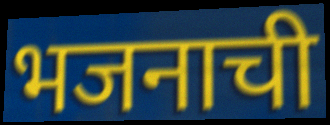
भजनाची